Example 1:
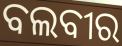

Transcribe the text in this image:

ବଲବୀର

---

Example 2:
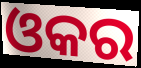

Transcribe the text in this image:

ଓକର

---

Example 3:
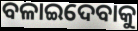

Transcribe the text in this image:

ବଳାଇଦେବାକୁ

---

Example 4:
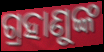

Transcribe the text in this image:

ଗ୍ରହାଣୁଙ୍କ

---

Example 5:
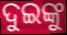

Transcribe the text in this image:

ଦୁଇଙ୍କୁ